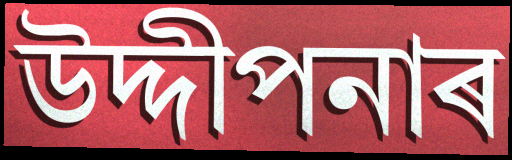
উদ্দীপনাৰ